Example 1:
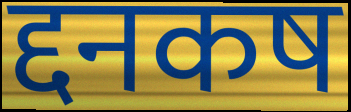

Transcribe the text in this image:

द्दनकष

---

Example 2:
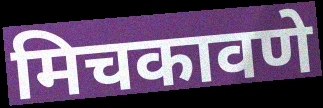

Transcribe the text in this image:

मिचकावणे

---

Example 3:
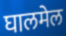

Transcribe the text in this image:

घालमेल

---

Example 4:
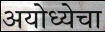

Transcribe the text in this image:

अयोध्येचा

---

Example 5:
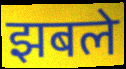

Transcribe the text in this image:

झबले